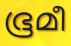
ഭൂമീ